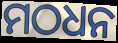
ମଠଧନ